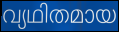
വ്യഥിതമായ